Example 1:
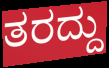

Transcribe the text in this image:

ತರದ್ದು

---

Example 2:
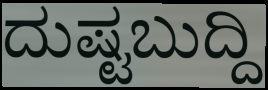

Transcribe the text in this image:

ದುಷ್ಟಬುದ್ದಿ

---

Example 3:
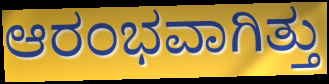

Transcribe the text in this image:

ಆರಂಭವಾಗಿತ್ತು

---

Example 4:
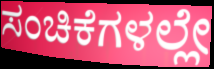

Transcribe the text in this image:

ಸಂಚಿಕೆಗಳಲ್ಲೇ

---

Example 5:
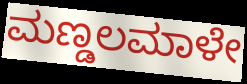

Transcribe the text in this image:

ಮಣ್ಡಲಮಾಳೇ